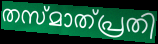
തസ്മാത്പ്രതി